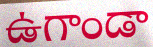
ఉగాండా